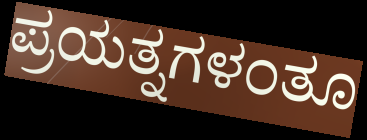
ಪ್ರಯತ್ನಗಳಂತೂ